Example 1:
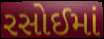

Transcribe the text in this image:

રસોઈમાં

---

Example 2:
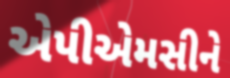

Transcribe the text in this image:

એપીએમસીને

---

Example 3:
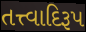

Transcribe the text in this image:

તત્ત્વાદિરૂપ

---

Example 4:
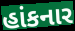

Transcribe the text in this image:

હાંકનાર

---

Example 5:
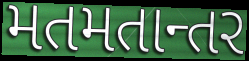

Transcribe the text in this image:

મતમતાન્તર